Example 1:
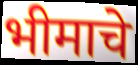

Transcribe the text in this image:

भीमाचे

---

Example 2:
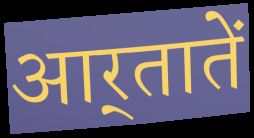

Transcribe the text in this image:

आर्तातें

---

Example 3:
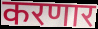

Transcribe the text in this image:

करणार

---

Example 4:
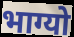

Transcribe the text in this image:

भाग्यो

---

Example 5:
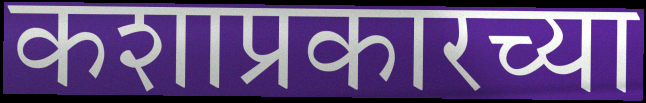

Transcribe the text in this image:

कशाप्रकारच्या